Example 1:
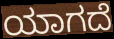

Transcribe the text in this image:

ಯಾಗದೆ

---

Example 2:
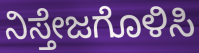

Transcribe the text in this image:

ನಿಸ್ತೇಜಗೊಳಿಸಿ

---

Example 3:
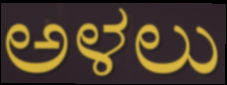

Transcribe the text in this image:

ಅಳಲು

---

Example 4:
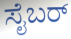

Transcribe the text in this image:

ಸೈಬರ್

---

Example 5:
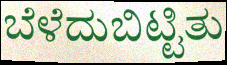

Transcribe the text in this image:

ಬೆಳೆದುಬಿಟ್ಟಿತು